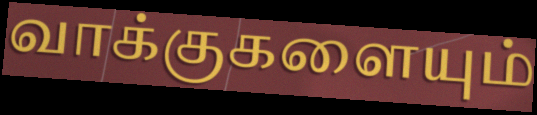
வாக்குகளையும்